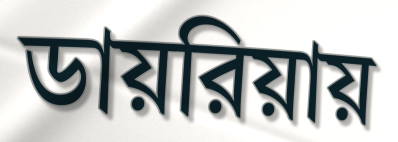
ডায়রিয়ায়